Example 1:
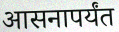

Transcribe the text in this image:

आसनापर्यंत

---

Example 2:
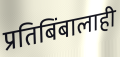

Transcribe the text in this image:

प्रतिबिंबालाही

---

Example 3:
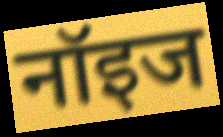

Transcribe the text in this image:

नॉइज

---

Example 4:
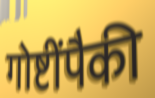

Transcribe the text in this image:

गोष्टींपैकी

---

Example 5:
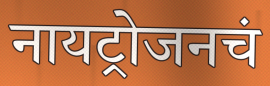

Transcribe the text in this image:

नायट्रोजनचं